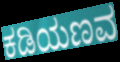
ಕಡಿಯಣವ